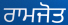
ਰਾਮਜੋਤ